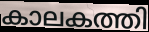
കാലകത്തി